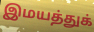
இமயத்துக்